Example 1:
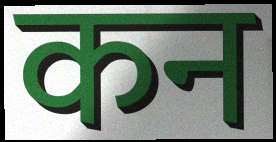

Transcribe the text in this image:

कन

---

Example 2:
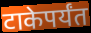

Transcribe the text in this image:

टाकेपर्यंत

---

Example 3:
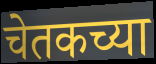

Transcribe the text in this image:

चेतकच्या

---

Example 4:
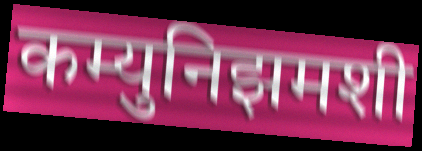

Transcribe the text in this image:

कम्युनिझमशी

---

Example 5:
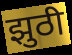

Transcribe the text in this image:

झुठी